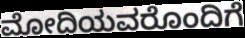
ಮೋದಿಯವರೊಂದಿಗೆ